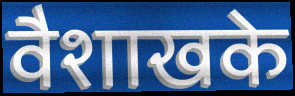
वैशाखके